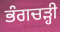
ਭੰਗਚੜ੍ਹੀ